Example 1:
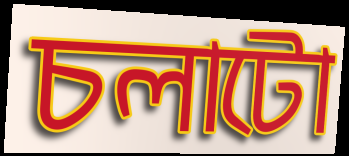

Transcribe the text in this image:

চলাটো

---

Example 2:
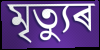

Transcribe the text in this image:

মৃত্যুৰ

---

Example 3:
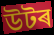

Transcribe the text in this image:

উটৰ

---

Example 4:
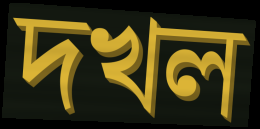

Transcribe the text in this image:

দখল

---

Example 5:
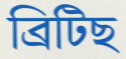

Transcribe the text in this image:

ব্ৰিটিছ